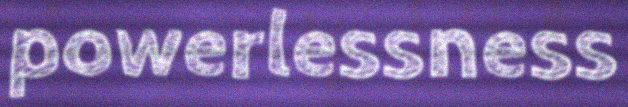
powerlessness